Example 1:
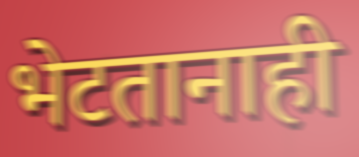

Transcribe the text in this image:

भेटतानाही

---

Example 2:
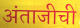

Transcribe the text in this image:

अंताजीची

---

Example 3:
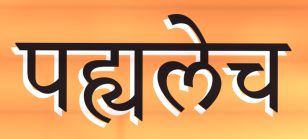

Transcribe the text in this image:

पह्यलेच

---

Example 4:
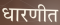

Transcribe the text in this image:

धारणीत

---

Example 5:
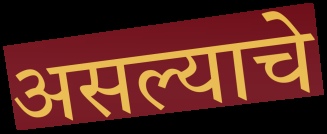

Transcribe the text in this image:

असल्‍याचे